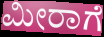
ಮೀರಾಗೆ